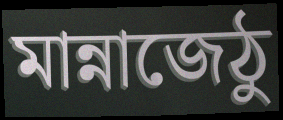
মান্নাজেঠু